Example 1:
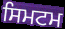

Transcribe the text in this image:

ਸਿਮਟਮ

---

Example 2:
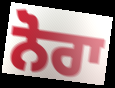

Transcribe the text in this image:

ਨੋਰਾ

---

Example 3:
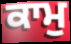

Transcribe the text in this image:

ਕਾਮੁ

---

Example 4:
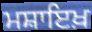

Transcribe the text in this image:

ਮਸ਼ਾਇਖ਼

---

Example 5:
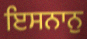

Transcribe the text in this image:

ਇਸਨਾਨੁ